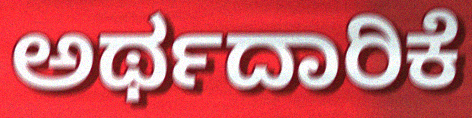
ಅರ್ಥದಾರಿಕೆ